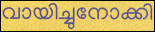
വായിച്ചുനോക്കി